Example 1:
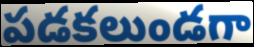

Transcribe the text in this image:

పడకలుండగా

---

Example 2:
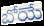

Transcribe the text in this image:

బోయే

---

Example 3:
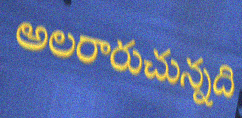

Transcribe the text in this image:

అలరారుచున్నది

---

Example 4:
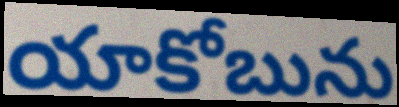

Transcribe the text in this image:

యాకోబును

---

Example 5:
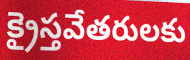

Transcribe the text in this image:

క్రైస్తవేతరులకు